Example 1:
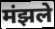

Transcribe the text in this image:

मंझले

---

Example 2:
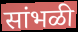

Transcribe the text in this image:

सांभळी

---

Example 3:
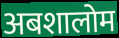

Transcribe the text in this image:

अबशालोम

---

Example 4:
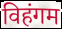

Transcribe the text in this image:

विहंगम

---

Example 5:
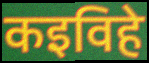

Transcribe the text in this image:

कइविहे